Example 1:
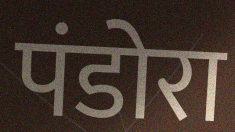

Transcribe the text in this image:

पंडोरा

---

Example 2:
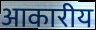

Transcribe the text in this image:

आकारीय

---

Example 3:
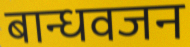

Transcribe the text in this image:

बान्धवजन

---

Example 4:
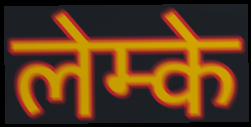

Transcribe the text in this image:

लेम्के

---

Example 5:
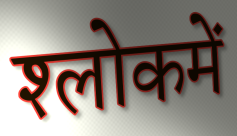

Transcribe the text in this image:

श्‍लोकमें